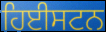
ਹਿਈਸਟਨ